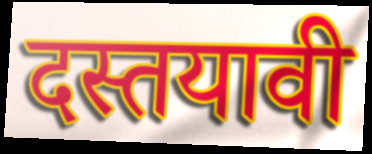
दस्तयावी